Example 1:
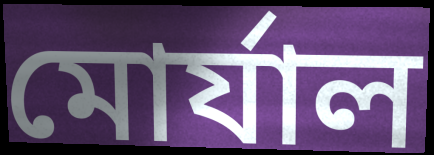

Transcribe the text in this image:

মোর্যাল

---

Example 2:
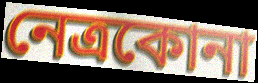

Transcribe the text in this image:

নেত্রকোনা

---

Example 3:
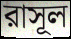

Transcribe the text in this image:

রাসূল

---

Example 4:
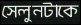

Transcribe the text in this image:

সেলুনটাকে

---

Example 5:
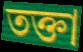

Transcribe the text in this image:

তক্তা